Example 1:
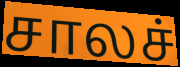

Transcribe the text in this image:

சாலச்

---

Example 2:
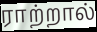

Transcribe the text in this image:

ராற்றால்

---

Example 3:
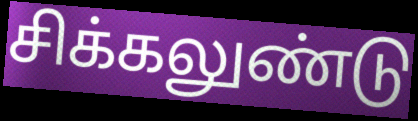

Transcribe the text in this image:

சிக்கலுண்டு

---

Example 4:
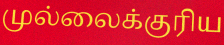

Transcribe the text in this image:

முல்லைக்குரிய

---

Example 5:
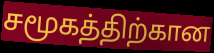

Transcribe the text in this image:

சமூகத்திற்கான